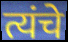
त्यंचे